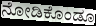
ನೋಡಿಕೊಂಡೂ